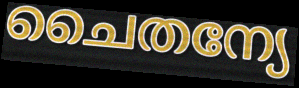
ചൈതന്യേ